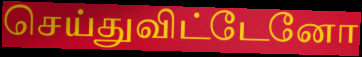
செய்துவிட்டேனோ